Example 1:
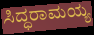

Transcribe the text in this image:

ಸಿದ್ಧರಾಮಯ್ಯ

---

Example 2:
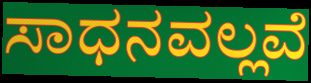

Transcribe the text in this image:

ಸಾಧನವಲ್ಲವೆ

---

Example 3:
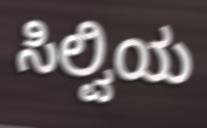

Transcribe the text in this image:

ಸಿಲ್ವಿಯ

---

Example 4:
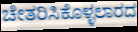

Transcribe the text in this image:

ಚೇತರಿಸಿಕೊಳ್ಳಲಾರದ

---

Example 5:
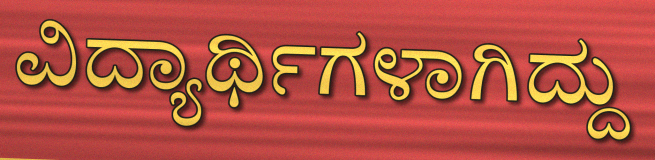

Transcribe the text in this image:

ವಿದ್ಯಾರ್ಥಿಗಳಾಗಿದ್ದು